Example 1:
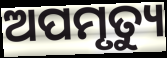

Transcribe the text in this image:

ଅପମୃତ୍ୟୁ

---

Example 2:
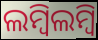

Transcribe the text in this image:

ଲମ୍ବିଲମ୍ବି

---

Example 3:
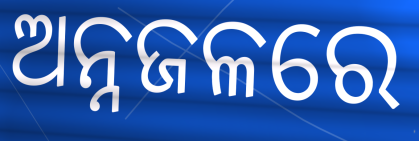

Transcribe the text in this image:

ଅନ୍ନଜଳରେ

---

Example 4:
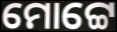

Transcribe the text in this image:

ମୋଟ୍ଟେ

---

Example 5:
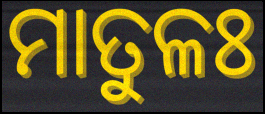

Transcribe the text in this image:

ମାତୁଳଃ